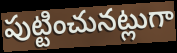
పుట్టించునట్లుగా